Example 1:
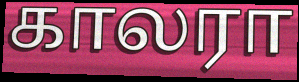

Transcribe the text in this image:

காலரா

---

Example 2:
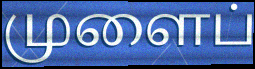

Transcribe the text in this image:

முளைப்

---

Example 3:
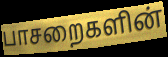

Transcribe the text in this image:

பாசறைகளின்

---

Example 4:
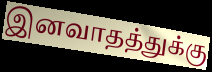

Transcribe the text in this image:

இனவாதத்துக்கு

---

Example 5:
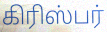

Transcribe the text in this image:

கிரிஸ்பர்